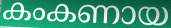
കംകണായ